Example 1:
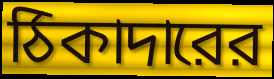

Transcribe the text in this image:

ঠিকাদারের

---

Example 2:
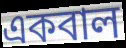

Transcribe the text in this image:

একবাল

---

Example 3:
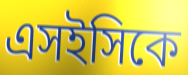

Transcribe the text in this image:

এসইসিকে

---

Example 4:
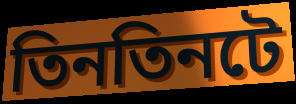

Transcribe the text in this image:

তিনতিনটে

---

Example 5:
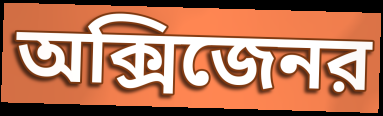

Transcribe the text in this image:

অক্সিজেনর